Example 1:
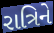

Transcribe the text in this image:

રાત્રિને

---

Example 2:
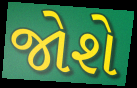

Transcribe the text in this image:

જોશે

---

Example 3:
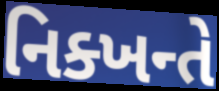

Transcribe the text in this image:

નિક્ખન્તે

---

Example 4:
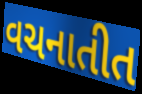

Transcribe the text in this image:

વચનાતીત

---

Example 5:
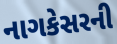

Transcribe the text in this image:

નાગકેસરની